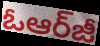
ఓఆర్‌జీ